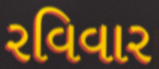
રવિવાર